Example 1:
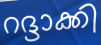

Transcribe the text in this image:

റദ്ദാക്കി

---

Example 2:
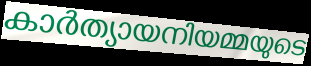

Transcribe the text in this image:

കാർത്യായനിയമ്മയുടെ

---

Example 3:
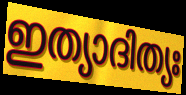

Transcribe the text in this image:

ഇത്യാദിത്യഃ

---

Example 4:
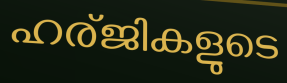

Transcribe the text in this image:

ഹര്ജികളുടെ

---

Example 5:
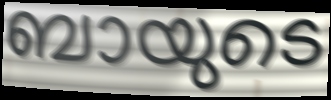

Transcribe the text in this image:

ബായുടെ